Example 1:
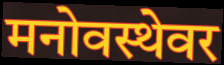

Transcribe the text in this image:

मनोवस्थेवर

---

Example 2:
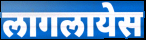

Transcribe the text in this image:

लागलायेस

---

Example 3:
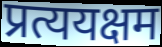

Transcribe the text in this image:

प्रत्ययक्षम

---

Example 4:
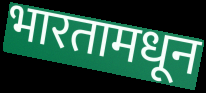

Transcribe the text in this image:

भारतामधून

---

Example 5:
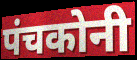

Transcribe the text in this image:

पंचकोनी